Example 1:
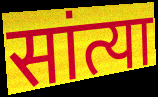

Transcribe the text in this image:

सांत्या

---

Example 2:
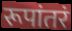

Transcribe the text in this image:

रूपांतरं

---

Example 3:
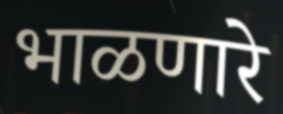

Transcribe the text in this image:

भाळणारे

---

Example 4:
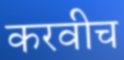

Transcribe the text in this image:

करवीच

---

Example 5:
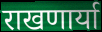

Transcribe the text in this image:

राखणार्या